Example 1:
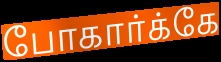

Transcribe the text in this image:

போகார்க்கே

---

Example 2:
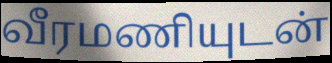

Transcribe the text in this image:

வீரமணியுடன்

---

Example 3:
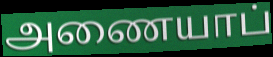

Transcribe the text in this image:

அணையாப்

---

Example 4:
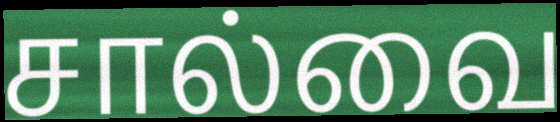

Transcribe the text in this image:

சால்வை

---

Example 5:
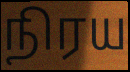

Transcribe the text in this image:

நிரய